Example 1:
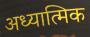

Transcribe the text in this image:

अध्यात्मिक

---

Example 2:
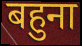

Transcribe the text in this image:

बहुना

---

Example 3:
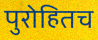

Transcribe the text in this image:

पुरोहितच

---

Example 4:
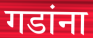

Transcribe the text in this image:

गडांना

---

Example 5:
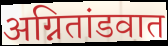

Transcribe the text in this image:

अग्नितांडवात